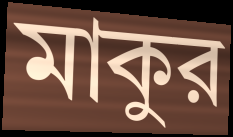
মাকুর